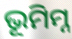
ଭୂମିମ୍ନ